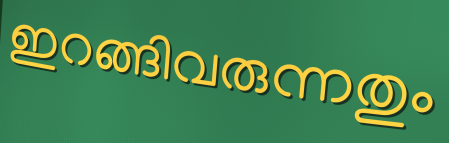
ഇറങ്ങിവരുന്നതും